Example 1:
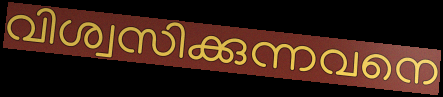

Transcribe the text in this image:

വിശ്വസിക്കുന്നവനെ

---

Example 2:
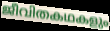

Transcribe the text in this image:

ജീവിതകഥകളും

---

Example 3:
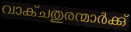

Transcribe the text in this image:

വാക്ചതുരന്മാർക്കു്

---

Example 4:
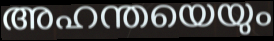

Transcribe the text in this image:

അഹന്തയെയും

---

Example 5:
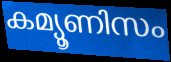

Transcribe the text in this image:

കമ്യൂണിസം